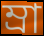
ম্রা